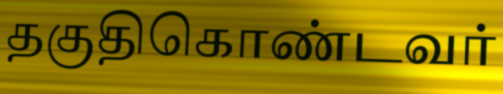
தகுதிகொண்டவர்